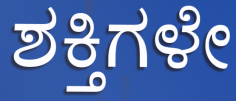
ಶಕ್ತಿಗಳೇ